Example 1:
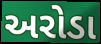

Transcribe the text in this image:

અરોડા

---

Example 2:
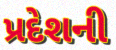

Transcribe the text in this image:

પ્રદેશની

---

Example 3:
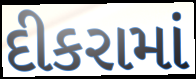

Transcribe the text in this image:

દીકરામાં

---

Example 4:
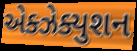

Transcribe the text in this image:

એક્ઝેક્યુશન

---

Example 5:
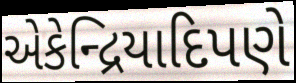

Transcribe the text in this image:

એકેન્દ્રિયાદિપણે